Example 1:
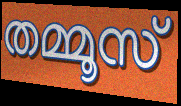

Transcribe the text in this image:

തമ്മൂസ്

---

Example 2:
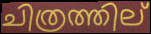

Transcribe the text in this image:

ചിത്രത്തില്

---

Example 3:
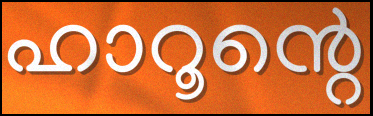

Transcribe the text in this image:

ഹാറൂന്റെ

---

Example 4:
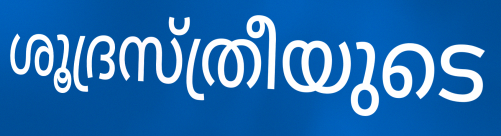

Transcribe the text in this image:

ശൂദ്രസ്ത്രീയുടെ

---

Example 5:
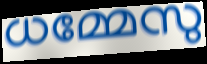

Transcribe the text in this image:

ധമ്മേസു